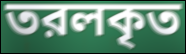
তরলকৃত